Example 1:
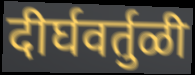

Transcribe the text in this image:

दीर्घवर्तुळी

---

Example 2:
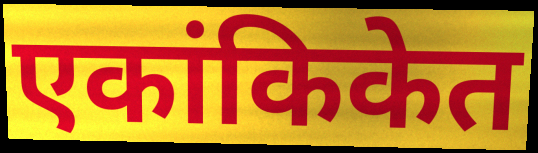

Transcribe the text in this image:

एकांकिकेत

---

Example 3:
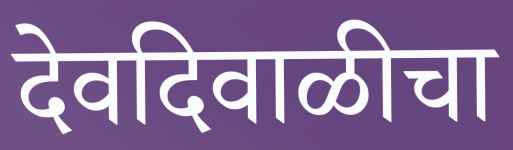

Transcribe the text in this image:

देवदिवाळीचा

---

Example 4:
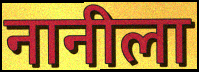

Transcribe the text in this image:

नानीला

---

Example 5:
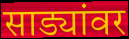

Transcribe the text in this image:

साड्यांवर